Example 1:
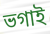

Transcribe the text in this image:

ভগাই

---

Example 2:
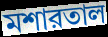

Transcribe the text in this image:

মশারতাল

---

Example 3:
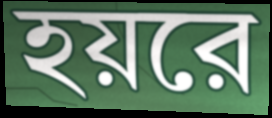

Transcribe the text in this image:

হয়রে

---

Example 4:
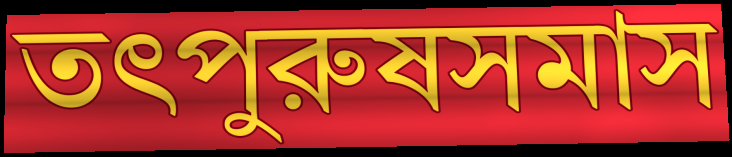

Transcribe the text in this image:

তৎপুরুষসমাস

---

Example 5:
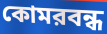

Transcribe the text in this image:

কোমরবন্ধ